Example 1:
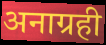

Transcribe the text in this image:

अनाग्रही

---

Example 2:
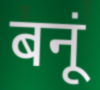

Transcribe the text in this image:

बनूं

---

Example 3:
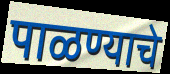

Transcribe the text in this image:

पाळण्याचे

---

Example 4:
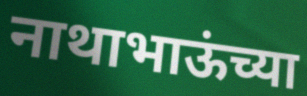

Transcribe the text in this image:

नाथाभाऊंच्या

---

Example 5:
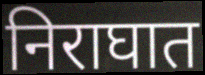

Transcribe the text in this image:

निराघात